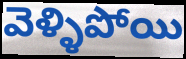
వెళ్ళిపోయి